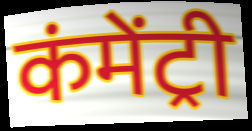
कंमेंट्री